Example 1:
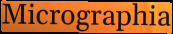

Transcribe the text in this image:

Micrographia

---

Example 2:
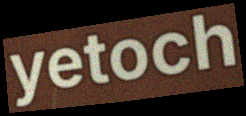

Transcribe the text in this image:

yetoch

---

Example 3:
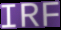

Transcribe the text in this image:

IRF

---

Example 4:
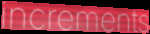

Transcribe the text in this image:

increments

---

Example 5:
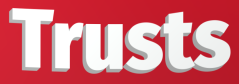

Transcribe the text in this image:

Trusts